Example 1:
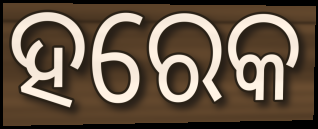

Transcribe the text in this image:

ହରେକ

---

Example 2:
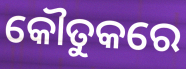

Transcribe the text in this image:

କୌତୁକରେ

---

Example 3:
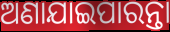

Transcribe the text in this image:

ଅଣାଯାଇପାରନ୍ତା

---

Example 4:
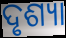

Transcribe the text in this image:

ଦୃଶ୍ୟା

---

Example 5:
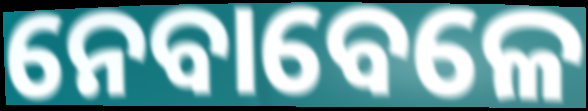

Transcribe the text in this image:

ନେବାବେଳେ